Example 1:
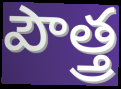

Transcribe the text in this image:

పౌత్త్ర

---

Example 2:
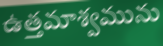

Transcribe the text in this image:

ఉత్తమాశ్వమును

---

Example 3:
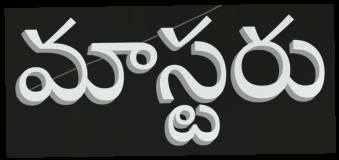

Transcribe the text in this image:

మాస్టరు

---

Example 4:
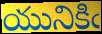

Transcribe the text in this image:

యునికిఁ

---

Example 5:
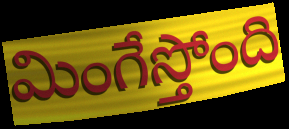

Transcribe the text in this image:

మింగేస్తోంది